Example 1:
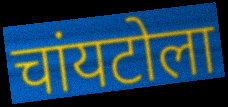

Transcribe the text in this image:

चांयटोला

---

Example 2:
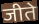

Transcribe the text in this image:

जीते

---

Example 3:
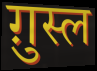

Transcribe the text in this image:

ग़ुस्ल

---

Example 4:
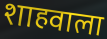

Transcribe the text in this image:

शाहवाला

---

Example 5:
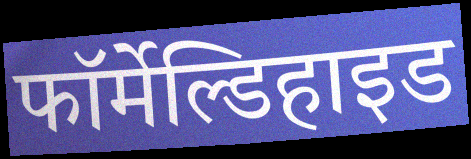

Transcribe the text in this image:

फॉर्मेल्डिहाइड